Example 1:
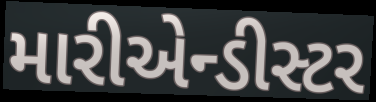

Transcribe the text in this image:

મારીએન્ડીસ્ટર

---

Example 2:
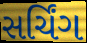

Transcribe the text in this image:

સર્ચિંગ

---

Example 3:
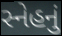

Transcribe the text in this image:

સ્નેહનું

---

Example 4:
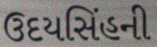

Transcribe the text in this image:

ઉદયસિંહની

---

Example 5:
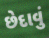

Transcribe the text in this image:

છેદાવું